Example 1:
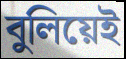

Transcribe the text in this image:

বুলিয়েই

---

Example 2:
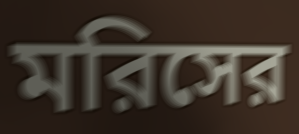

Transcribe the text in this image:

মরিসের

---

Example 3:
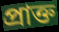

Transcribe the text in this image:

প্রাক্ত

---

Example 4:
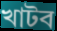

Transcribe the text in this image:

খাটব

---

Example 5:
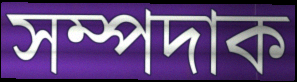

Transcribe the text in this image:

সম্পদাক